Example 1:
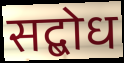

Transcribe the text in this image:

सद्बोध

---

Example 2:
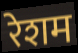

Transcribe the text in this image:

रेशम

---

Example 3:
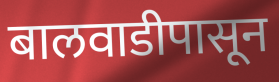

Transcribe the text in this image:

बालवाडीपासून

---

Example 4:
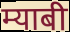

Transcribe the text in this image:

म्याबी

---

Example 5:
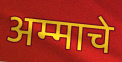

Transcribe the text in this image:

अम्माचे